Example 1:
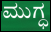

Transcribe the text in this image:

ಮುಗ್ಧ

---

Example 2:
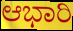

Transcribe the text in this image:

ಆಭಾರಿ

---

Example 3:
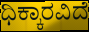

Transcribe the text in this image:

ಧಿಕ್ಕಾರವಿದೆ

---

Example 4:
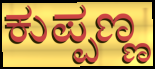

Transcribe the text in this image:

ಕುಪ್ಪಣ್ಣ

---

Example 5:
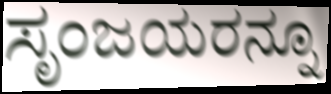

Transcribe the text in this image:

ಸೃಂಜಯರನ್ನೂ